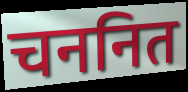
चननित